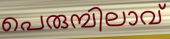
പെരുമ്പിലാവ്